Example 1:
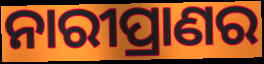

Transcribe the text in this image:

ନାରୀପ୍ରାଣର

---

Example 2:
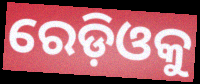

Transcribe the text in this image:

ରେଡ଼ିଓକୁ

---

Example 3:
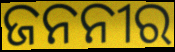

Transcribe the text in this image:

ଜନନୀର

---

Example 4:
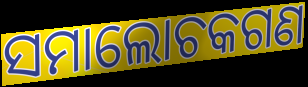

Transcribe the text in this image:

ସମାଲୋଚକଗଣ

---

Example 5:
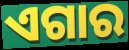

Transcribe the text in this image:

ଏଗାର